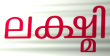
ലക്ഷ്മി